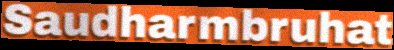
Saudharmbruhat